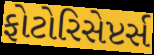
ફોટોરિસેપ્ટર્સ